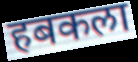
हबकला